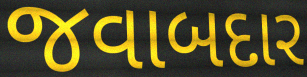
જવાબદાર